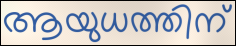
ആയുധത്തിന്